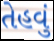
તેહવું